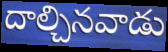
దాల్చినవాడు